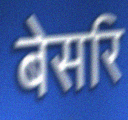
बेसरि